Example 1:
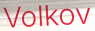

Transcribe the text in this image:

Volkov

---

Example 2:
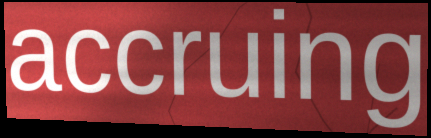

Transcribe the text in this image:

accruing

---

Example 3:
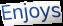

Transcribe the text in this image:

Enjoys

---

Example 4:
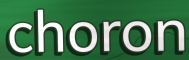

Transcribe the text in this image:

choron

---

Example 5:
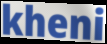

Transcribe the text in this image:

kheni